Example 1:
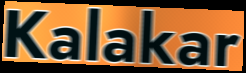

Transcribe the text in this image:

Kalakar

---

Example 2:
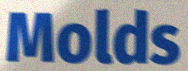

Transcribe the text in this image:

Molds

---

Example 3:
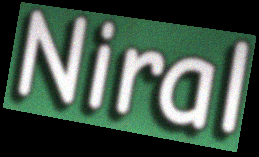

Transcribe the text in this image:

Niral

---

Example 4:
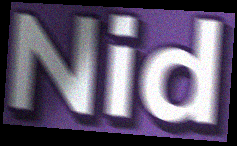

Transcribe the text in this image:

Nid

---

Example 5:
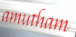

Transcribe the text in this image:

amutham